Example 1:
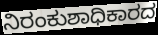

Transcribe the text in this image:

ನಿರಂಕುಶಾಧಿಕಾರದ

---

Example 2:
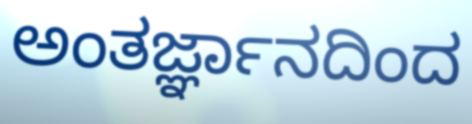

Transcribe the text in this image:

ಅಂತರ್ಜ್ಞಾನದಿಂದ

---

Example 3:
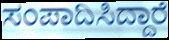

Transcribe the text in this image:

ಸಂಪಾದಿಸಿದ್ದಾರೆ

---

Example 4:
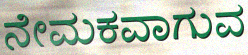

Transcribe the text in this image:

ನೇಮಕವಾಗುವ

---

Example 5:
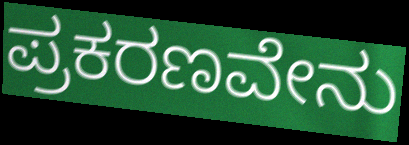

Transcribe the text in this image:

ಪ್ರಕರಣವೇನು